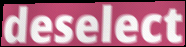
deselect